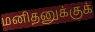
மனிதனுக்குக்